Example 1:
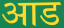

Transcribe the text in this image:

आड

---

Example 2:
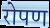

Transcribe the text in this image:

रोपण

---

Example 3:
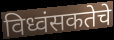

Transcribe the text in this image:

विध्वंसकतेचे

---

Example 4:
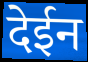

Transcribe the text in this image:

देईन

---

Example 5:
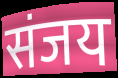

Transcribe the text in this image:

संजय